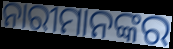
ନାରୀମାନଙ୍କର